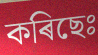
কৰিছেঃ